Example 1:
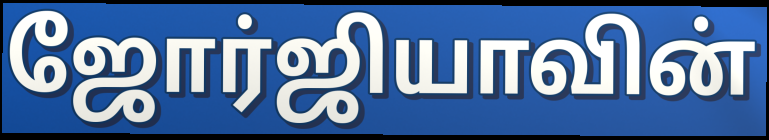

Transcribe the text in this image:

ஜோர்ஜியாவின்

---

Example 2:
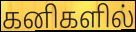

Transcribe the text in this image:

கனிகளில்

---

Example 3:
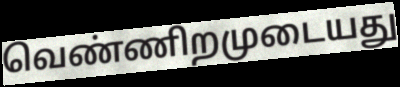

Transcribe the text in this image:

வெண்ணிறமுடையது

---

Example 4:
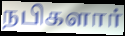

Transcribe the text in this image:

நபிகளார்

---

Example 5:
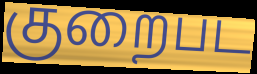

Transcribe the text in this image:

குறைபட